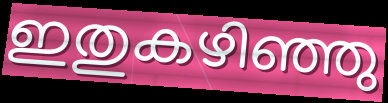
ഇതുകഴിഞ്ഞു